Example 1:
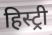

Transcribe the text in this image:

हिस्ट्री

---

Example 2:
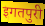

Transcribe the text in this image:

इगतपुरी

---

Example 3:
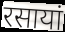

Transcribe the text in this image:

रसायां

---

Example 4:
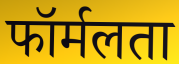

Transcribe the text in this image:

फॉर्मलता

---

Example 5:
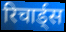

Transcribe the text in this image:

रिचार्ड्स